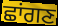
ਛਾਂਗਣ